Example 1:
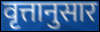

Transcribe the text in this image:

वृत्तानुसार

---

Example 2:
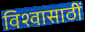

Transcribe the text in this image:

विश्वासाठीं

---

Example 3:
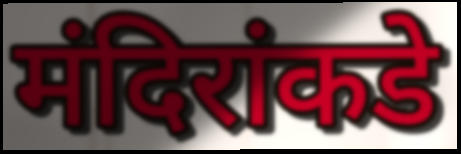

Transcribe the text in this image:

मंदिरांकडे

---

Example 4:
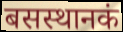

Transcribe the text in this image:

बसस्थानकं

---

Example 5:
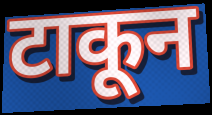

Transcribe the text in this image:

टाकून